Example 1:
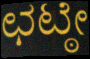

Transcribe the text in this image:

ಛಟ್ಠೇ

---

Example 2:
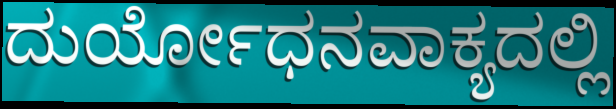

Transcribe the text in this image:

ದುರ್ಯೋಧನವಾಕ್ಯದಲ್ಲಿ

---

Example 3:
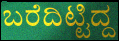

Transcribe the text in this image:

ಬರೆದಿಟ್ಟಿದ್ದ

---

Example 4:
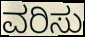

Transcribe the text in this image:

ವರಿಸು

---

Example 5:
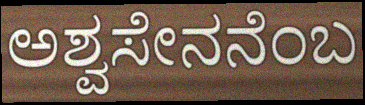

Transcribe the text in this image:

ಅಶ್ವಸೇನನೆಂಬ